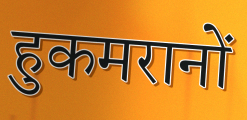
हुकमरानों